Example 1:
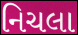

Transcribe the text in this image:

નિચલા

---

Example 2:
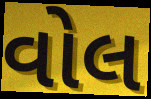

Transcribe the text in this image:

વોલ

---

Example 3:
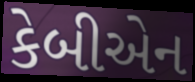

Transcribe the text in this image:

કેબીએન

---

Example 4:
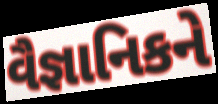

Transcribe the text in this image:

વૈજ્ઞાનિકને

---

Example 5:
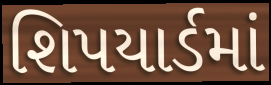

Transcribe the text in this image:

શિપયાર્ડમાં